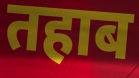
तहाब